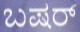
ಬಷರ್